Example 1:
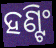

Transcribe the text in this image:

ହଣ୍ଟିଂ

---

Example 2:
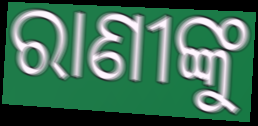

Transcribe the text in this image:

ରାଣୀଙ୍କୁ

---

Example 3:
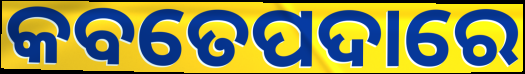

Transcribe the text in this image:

କବତେପଦାରେ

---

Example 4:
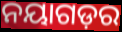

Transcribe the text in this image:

ନୟାଗଡ଼ର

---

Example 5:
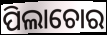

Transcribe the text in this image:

ପିଲାଚୋର